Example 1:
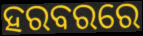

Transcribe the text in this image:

ହରବରରେ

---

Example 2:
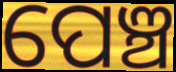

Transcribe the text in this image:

ପେଞ୍ଚ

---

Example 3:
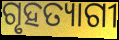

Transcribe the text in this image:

ଗୃହତ୍ୟାଗୀ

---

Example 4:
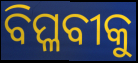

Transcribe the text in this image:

ବିପ୍ଳବୀକୁ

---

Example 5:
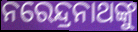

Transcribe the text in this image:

ନରେନ୍ଦ୍ରନାଥଙ୍କୁ